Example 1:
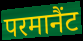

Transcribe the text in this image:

परमानैंट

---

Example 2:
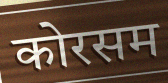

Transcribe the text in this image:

कोरसम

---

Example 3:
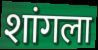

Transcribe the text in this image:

शांगला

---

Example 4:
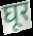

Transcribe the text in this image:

घूर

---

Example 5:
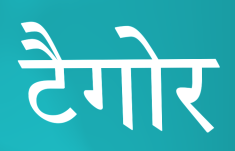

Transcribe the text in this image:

टैगोर